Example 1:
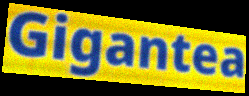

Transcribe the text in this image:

Gigantea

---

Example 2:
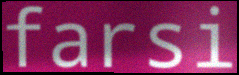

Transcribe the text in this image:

farsi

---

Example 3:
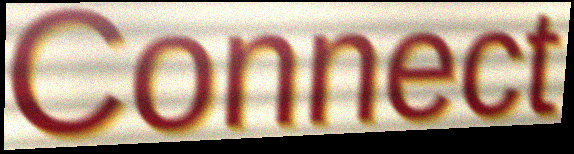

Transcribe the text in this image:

Connect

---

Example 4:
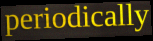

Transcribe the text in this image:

periodically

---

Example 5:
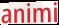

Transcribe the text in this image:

animi